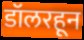
डॉलरहून